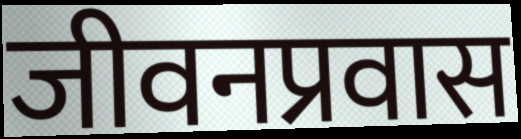
जीवनप्रवास